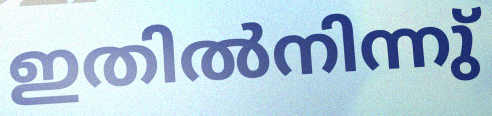
ഇതിൽനിന്നു്